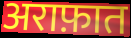
अराफ़ात